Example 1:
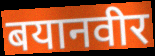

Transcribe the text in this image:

बयानवीर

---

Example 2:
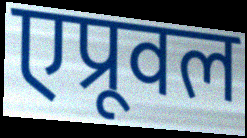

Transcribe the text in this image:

एप्रूवल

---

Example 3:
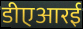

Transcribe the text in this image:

डीएआरई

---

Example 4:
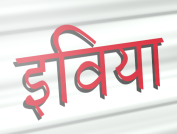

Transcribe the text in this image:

इविया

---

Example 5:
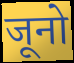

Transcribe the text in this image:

जूनो